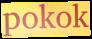
pokok